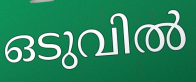
ഒടുവിൽ